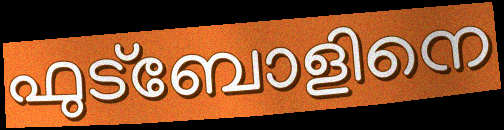
ഫുട്ബോളിനെ